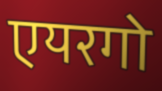
एयरगो